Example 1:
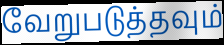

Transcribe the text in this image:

வேறுபடுத்தவும்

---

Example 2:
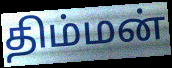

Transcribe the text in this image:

திம்மன்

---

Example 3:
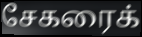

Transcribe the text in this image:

சேகரைக்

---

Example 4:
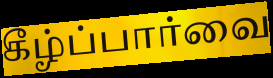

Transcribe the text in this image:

கீழ்ப்பார்வை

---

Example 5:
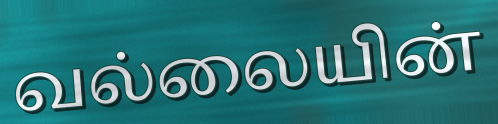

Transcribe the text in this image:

வல்லையின்